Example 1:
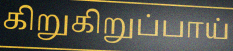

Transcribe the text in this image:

கிறுகிறுப்பாய்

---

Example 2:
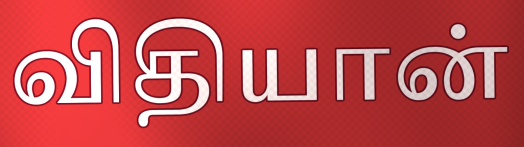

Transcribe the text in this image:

விதியான்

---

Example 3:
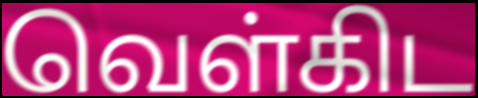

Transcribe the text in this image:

வெள்கிட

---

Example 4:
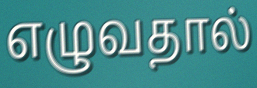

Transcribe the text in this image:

எழுவதால்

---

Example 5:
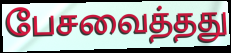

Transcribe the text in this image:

பேசவைத்தது